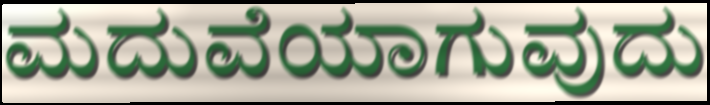
ಮದುವೆಯಾಗುವುದು